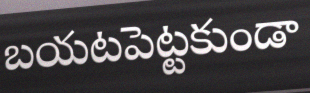
బయటపెట్టకుండా